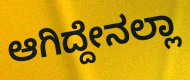
ಆಗಿದ್ದೇನಲ್ಲಾ